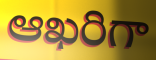
ఆఖరిగా